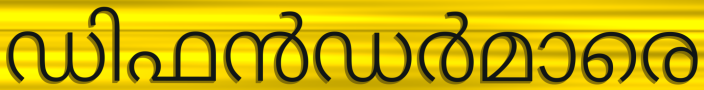
ഡിഫൻഡർമാരെ